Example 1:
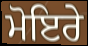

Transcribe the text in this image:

ਮੋਇਰੇ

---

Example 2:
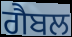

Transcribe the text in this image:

ਗੈਬਲ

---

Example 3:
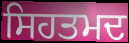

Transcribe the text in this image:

ਸਿਹਤਮਦ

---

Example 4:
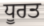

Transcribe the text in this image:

ਧੂਰਤ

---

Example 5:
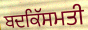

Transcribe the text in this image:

ਬਦਕਿੱਸਮਤੀ